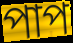
পাপ